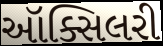
ઑક્સિલરી